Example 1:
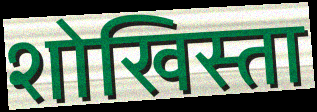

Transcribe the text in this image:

शोखिस्ता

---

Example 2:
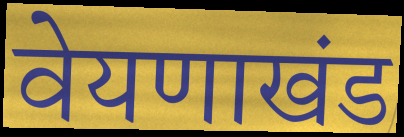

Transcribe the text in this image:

वेयणाखंड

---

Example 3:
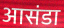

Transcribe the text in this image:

आसंडा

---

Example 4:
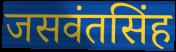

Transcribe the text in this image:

जसवंतसिंह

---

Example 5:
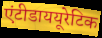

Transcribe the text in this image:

एंटीडाययूरेटिक